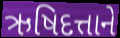
ઋષિદત્તાને